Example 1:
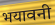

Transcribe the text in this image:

भयावनी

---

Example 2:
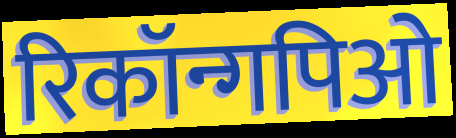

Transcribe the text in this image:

रिकॉन्गपिओ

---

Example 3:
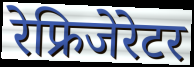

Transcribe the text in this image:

रेफ्रिजेरेटर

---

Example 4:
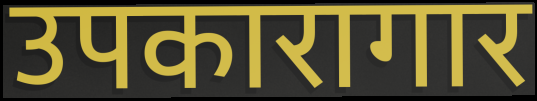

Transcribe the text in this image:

उपकारागार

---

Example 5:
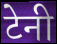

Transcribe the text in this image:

टेनी